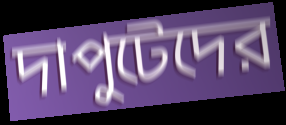
দাপুটেদের